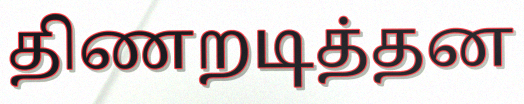
திணறடித்தன